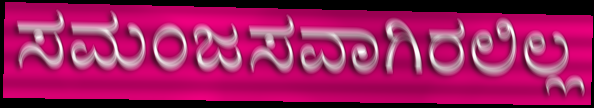
ಸಮಂಜಸವಾಗಿರಲಿಲ್ಲ